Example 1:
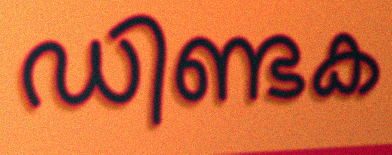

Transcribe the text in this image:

ഡിണ്ടക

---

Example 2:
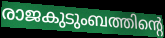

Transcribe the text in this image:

രാജകുടുംബത്തിന്റെ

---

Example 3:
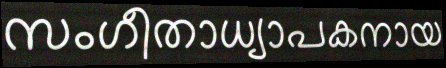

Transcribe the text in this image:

സംഗീതാധ്യാപകനായ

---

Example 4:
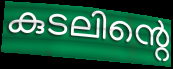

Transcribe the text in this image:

കുടലിന്റെ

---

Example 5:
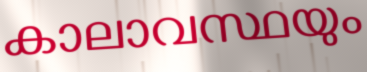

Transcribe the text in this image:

കാലാവസ്ഥയും